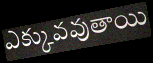
ఎక్కువవుతాయి